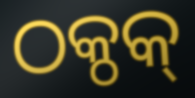
ଠକ୍ଠକ୍